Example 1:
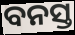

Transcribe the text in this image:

ବନସ୍ତ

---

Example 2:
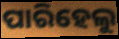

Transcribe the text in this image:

ପାରିହେଲୁ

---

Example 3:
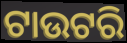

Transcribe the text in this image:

ଟାଉଟରି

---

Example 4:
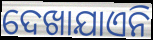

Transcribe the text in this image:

ଦେଖାଯାଏନି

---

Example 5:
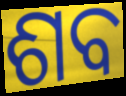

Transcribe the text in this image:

ଶବ